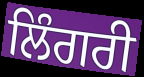
ਲਿੰਗਰੀ